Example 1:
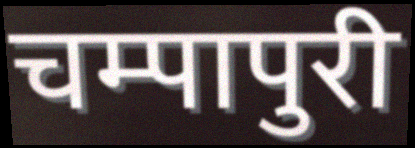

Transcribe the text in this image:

चम्पापुरी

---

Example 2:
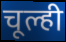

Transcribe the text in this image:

चूल्ही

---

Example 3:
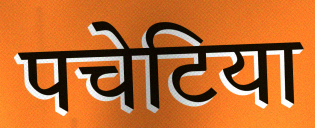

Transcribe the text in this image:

पचेटिया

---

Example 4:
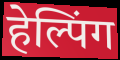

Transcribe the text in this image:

हेल्पिंग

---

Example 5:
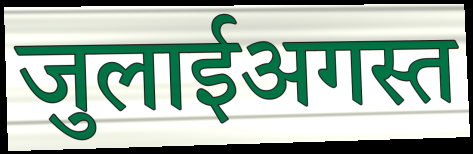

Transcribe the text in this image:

जुलाईअगस्त